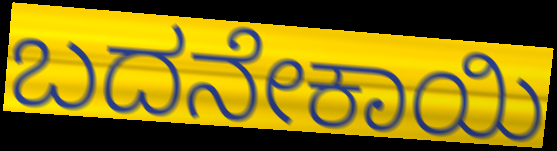
ಬದನೇಕಾಯಿ